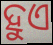
ହୁଏ